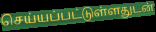
செய்யப்பட்டுள்ளதுடன்